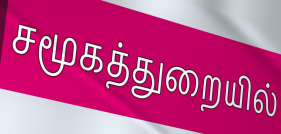
சமூகத்துறையில்